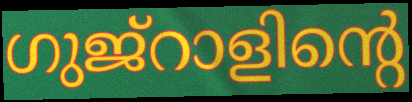
ഗുജ്റാളിന്റെ